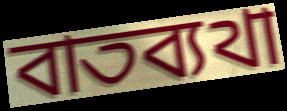
বাতব্যথা